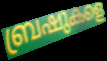
ബ്രഷുകളെ